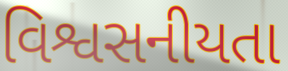
વિશ્વસનીયતા